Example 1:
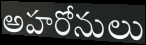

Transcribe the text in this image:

అహరోనులు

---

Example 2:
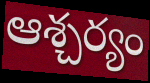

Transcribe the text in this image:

ఆశ్చర్యం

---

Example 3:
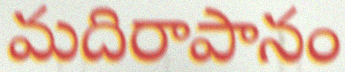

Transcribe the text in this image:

మదిరాపానం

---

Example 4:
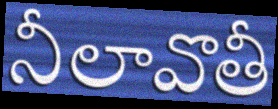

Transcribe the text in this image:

నీలావొతీ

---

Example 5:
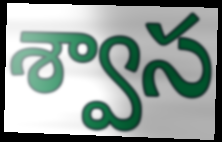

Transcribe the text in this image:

శ్వాస